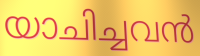
യാചിച്ചവൻ